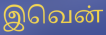
இவென்